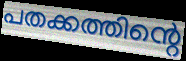
പതക്കത്തിന്റെ